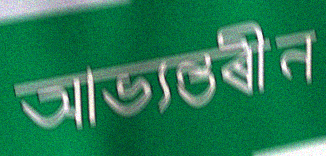
আভ্যন্তৰীন